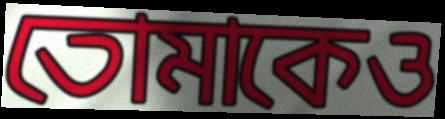
তোমাকেও